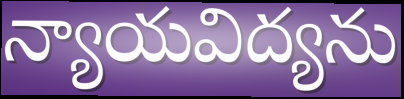
న్యాయవిద్యను